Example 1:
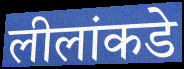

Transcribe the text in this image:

लीलांकडे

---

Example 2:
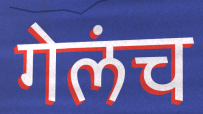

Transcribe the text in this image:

गेलंच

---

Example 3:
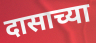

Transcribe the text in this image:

दासाच्या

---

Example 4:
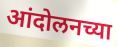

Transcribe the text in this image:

आंदोलनच्या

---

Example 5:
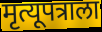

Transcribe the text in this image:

मृत्यूपत्राला